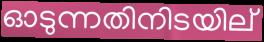
ഓടുന്നതിനിടയില്